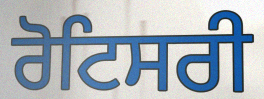
ਰੋਟਿਸਰੀ